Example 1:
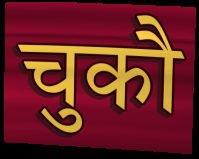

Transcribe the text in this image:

चुकौ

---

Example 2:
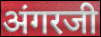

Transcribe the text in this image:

अंगरजी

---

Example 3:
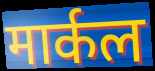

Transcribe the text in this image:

मार्कल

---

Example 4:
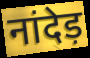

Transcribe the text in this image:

नांदेड़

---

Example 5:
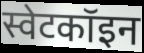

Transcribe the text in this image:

स्वेटकॉइन